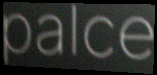
palce